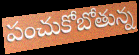
పంచుకోబోతున్న